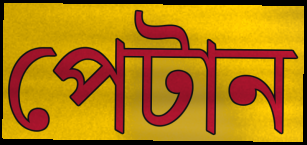
পেটান